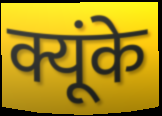
क्यूंके